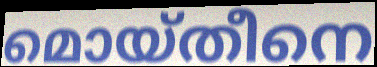
മൊയ്തീനെ